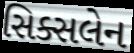
સિક્સલેન